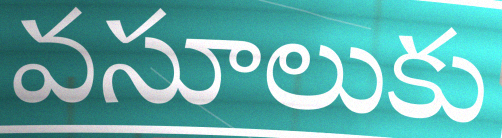
వసూలుకు